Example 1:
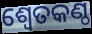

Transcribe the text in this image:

ଶ୍ୱେତକଣ୍ଠ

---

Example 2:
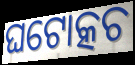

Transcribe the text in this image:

ଘଟୋତ୍କଚ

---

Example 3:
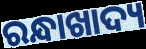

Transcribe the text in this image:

ରନ୍ଧାଖାଦ୍ୟ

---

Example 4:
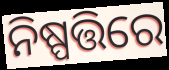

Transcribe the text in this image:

ନିଷ୍ପତ୍ତିରେ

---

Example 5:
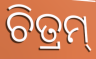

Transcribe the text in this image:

ଚିତ୍ରମ୍